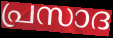
പ്രസാദ